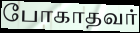
போகாதவர்